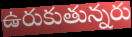
ఉరుకుతున్నరు